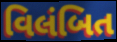
વિલંબિત